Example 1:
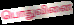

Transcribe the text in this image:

பொதுவினை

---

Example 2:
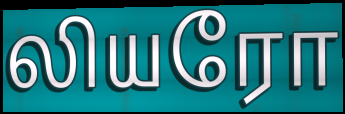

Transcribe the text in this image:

லியரோ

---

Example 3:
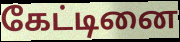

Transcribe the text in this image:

கேட்டினை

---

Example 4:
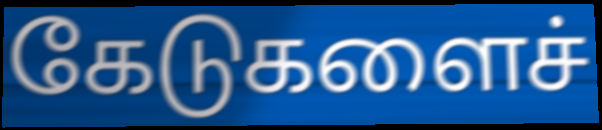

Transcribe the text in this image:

கேடுகளைச்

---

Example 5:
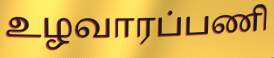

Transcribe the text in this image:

உழவாரப்பணி